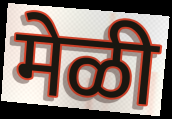
मेळी